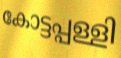
കോട്ടപ്പള്ളി